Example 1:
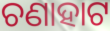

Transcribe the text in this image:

ଚଣାହାଟ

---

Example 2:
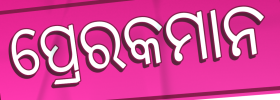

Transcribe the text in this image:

ପ୍ରେରକମାନ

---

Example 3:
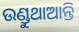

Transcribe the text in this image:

ଉଣ୍ଡୁଥାଆନ୍ତି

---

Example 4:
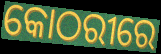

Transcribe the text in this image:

କୋଠରୀରେ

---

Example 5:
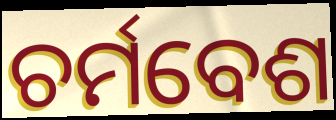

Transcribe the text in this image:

ଚର୍ମବେଶ